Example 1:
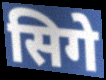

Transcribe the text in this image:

सिगे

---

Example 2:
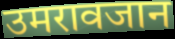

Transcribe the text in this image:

उमरावजान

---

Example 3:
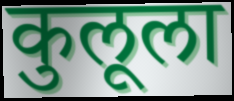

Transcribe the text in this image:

कुलूला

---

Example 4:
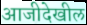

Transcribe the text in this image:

आजीदेखील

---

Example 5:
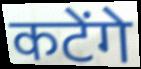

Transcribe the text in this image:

कटेंगे